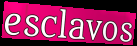
esclavos